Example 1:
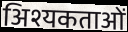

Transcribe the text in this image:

अिश्यकताओं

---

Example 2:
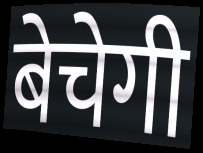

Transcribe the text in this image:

बेचेगी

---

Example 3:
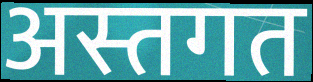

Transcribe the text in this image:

अस्तगत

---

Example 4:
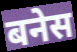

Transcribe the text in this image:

बनेस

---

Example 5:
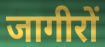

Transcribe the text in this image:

जागीरों